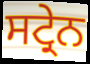
ਸਟ੍ਰੇਨ